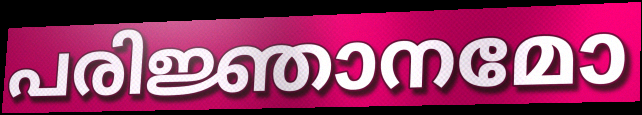
പരിജ്ഞാനമോ